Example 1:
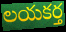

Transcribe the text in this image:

లయకర్త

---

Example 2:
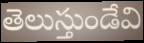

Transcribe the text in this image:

తెలుస్తుండేవి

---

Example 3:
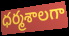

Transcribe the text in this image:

ధర్మశాలగా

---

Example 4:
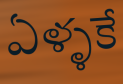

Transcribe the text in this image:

ఏళ్ళకే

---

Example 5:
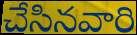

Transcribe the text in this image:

చేసినవారి